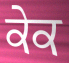
ਕੇਕ